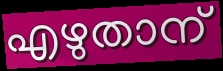
എഴുതാന്